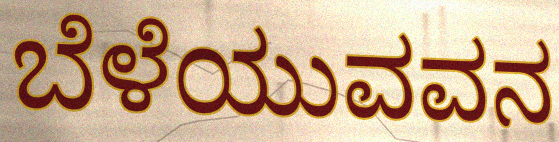
ಬೆಳೆಯುವವನ